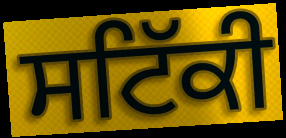
ਸਟਿੱਕੀ